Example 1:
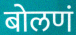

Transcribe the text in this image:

बोलणं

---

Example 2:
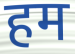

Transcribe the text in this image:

हम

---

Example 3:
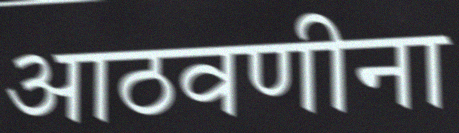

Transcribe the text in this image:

आठवणीना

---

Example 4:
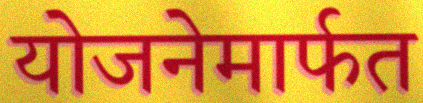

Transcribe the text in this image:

योजनेमार्फत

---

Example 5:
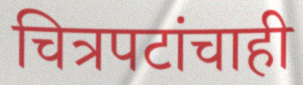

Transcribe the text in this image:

चित्रपटांचाही